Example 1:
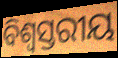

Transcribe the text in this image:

ବିଶ୍ବସ୍ତରୀୟ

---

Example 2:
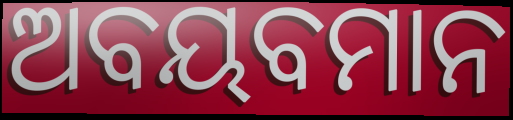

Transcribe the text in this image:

ଅବୟବମାନ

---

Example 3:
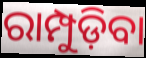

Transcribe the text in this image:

ରାମ୍ପୁଡ଼ିବା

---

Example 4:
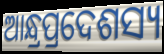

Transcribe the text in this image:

ଆନ୍ଧ୍ରପ୍ରଦେଶସ୍ୟ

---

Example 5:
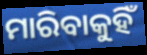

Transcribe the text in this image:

ମାରିବାକୁହିଁ